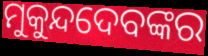
ମୁକୁନ୍ଦଦେବଙ୍କର